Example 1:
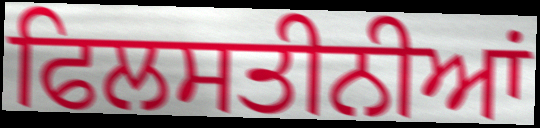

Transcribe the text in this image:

ਫਿਲਸਤੀਨੀਆਂ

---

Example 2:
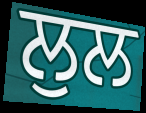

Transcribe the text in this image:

ਲੁਲ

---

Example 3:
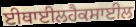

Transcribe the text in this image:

ਈਥਾਈਲਹੈਕਸਾਈਲ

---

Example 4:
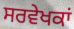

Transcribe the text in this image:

ਸਰਵੇਖਕਾਂ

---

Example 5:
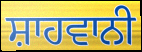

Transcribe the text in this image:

ਸ਼ਾਹਵਾਨੀ